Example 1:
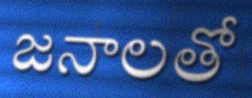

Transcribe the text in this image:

జనాలతో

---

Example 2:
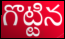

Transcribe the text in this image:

గొట్టిన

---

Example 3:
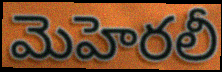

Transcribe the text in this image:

మెహెరలీ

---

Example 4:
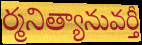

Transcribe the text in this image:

ర్మనిత్యానువర్తీ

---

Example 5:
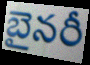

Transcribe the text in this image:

బైనరీ